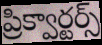
ప్రిక్వార్టర్స్